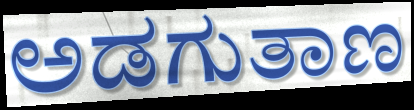
ಅಡಗುತಾಣ